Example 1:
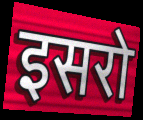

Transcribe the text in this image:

इसरो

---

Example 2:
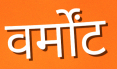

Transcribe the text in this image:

वर्मोंट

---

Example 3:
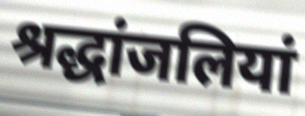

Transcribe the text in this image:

श्रद्धांजलियां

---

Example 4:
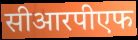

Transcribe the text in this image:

सीआरपीएफ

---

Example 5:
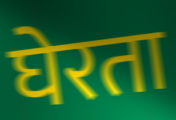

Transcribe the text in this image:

घेरता